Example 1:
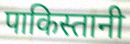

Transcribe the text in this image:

पाकिस्तानी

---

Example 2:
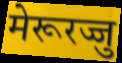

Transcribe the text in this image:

मेरूरज्जु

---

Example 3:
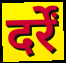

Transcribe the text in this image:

दर्रें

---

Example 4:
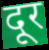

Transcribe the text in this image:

दूर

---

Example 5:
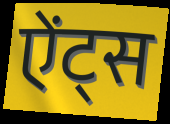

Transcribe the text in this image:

ऐंट्स